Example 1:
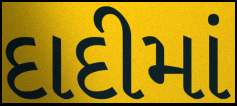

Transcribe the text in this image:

દાદીમાં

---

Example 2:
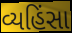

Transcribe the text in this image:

વ્યહિંસા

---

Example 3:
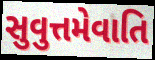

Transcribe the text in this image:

સુવુત્તમેવાતિ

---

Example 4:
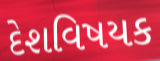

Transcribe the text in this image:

દેશવિષયક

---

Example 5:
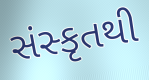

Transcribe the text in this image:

સંસ્કૃતથી